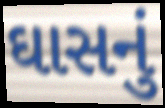
ઘાસનું